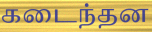
கடைந்தன